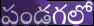
పండగలో